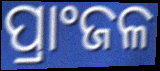
ପ୍ରାଂଜଳ